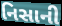
નિસાની